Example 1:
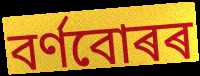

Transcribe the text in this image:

বৰ্ণবোৰৰ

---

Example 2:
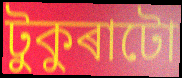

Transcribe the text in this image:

টুকুৰাটো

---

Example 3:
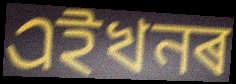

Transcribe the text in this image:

এইখনৰ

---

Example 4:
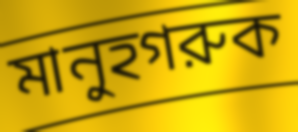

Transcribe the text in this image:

মানুহগৰুক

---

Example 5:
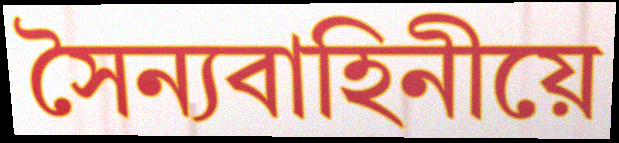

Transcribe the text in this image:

সৈন্যবাহিনীয়ে